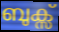
ബുക്സ്